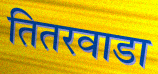
तितरवाडा